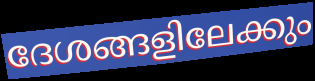
ദേശങ്ങളിലേക്കും